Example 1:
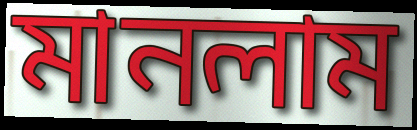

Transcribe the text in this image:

মানলাম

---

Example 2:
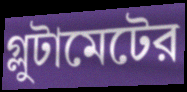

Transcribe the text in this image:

গ্লুটামেটের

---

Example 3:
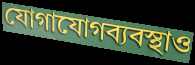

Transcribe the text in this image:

যোগাযোগব্যবস্থাও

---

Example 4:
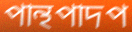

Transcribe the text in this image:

পান্থপাদপ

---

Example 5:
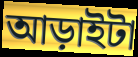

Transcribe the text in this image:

আড়াইটা